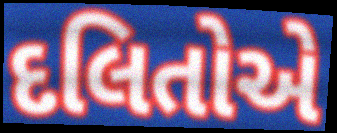
દલિતોએ